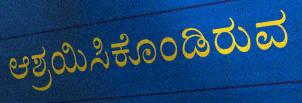
ಆಶ್ರಯಿಸಿಕೊಂಡಿರುವ